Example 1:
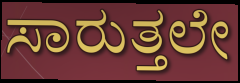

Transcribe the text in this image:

ಸಾರುತ್ತಲೇ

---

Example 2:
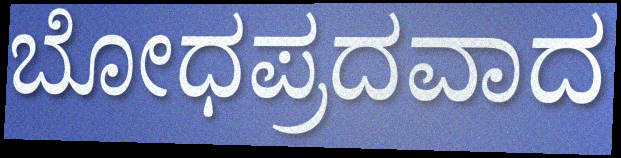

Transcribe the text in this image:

ಬೋಧಪ್ರದವಾದ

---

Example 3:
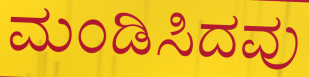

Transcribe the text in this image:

ಮಂಡಿಸಿದವು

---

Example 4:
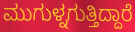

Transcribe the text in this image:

ಮುಗುಳ್ನಗುತ್ತಿದ್ದಾರೆ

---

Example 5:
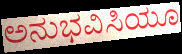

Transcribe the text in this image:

ಅನುಭವಿಸಿಯೂ